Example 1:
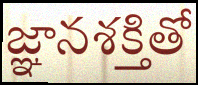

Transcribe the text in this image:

జ్ఞానశక్తితో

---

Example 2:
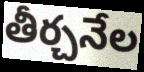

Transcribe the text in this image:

తీర్చనేల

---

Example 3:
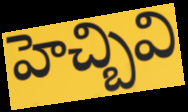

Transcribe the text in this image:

హెచ్బివి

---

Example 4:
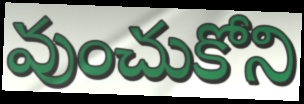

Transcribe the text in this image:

వుంచుకోని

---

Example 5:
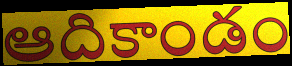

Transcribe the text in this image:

ఆదికాండం